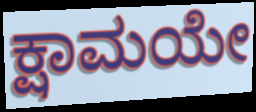
ಕ್ಷಾಮಯೇ